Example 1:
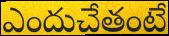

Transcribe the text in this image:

ఎందుచేతంటే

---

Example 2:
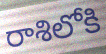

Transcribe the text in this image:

రాశిలోకి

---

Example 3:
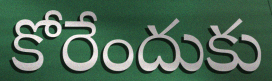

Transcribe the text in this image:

కోరేందుకు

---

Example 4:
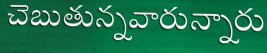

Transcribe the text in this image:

చెబుతున్నవారున్నారు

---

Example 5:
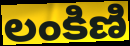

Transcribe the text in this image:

లంకిణి